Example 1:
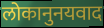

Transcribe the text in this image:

लोकानुनयवाद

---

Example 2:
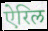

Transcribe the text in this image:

ऐरिल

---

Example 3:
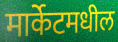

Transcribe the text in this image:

मार्केटमधील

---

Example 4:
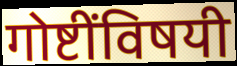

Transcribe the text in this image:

गोष्टींविषयी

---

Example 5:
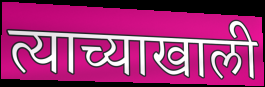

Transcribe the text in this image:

त्याच्याखाली